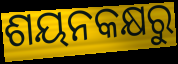
ଶୟନକକ୍ଷରୁ